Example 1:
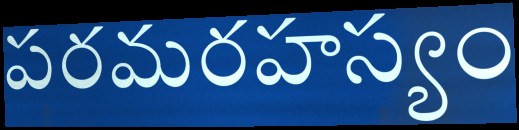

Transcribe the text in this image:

పరమరహస్యం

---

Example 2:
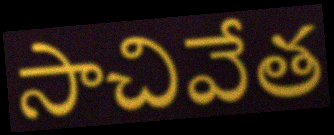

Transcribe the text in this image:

సాచివేత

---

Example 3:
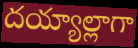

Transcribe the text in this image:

దయ్యాల్లాగా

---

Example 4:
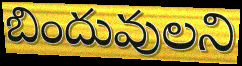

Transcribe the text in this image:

బిందువులని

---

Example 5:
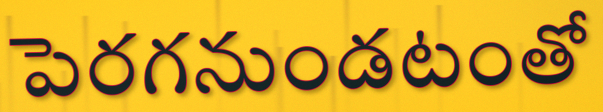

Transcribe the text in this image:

పెరగనుండటంతో